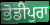
ਭੋਡੀਪੁਰਾ